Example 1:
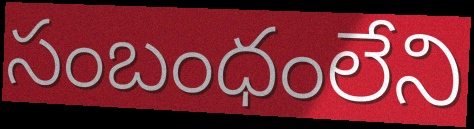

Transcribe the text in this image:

సంబంధంలేని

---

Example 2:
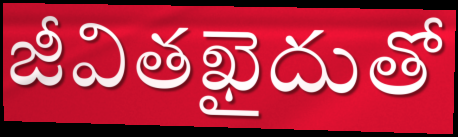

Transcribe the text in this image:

జీవితఖైదుతో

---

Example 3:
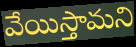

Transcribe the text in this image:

వేయిస్తామని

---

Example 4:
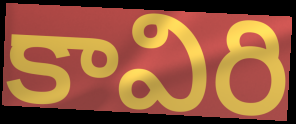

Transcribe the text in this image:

కావిరి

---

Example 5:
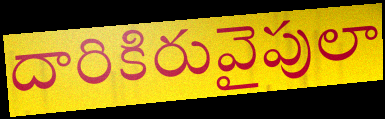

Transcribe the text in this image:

దారికిరువైపులా